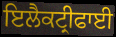
ਇਲੈਕਟ੍ਰੀਫਾਈ